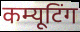
कम्यूटिंग